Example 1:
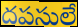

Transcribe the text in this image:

దపసులే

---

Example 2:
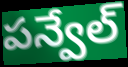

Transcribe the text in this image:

పన్వేల్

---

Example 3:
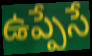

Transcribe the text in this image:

ఉప్పేసే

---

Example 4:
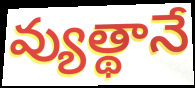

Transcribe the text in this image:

వ్యుత్థానే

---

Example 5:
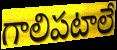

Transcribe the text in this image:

గాలిపటాలే